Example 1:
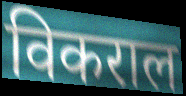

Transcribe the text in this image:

विकराल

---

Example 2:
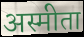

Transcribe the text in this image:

अस्मीता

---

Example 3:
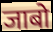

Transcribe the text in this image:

जाबो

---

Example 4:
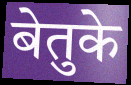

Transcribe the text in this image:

बेतुके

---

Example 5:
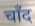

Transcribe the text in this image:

चाँद